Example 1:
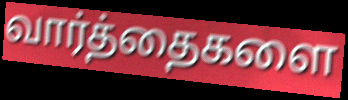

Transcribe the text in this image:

வார்த்தைகளை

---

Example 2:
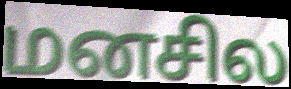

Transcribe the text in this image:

மனசில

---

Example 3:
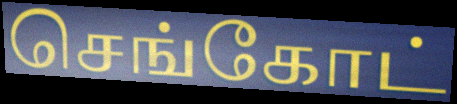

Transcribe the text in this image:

செங்கோட்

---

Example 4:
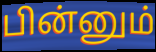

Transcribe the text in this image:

பின்னும்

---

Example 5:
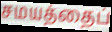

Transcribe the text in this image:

சமயத்தைப்